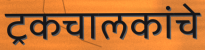
ट्रकचालकांचे